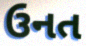
ઉનત